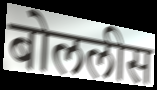
बोललीस